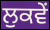
ਲੁਕਵੇਂ